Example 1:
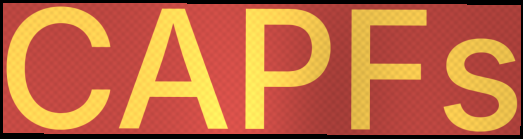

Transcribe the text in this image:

CAPFs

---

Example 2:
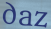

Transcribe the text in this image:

daz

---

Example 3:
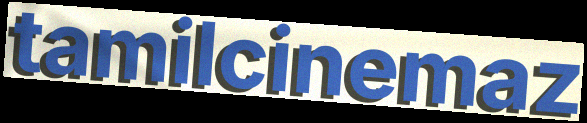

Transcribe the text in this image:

tamilcinemaz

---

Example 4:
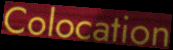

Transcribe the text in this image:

Colocation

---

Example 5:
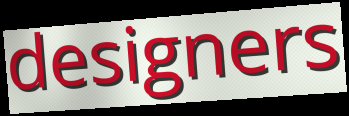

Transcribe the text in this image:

designers